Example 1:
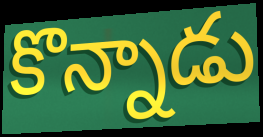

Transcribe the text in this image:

కొన్నాడు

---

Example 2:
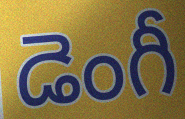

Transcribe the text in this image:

డెంగీ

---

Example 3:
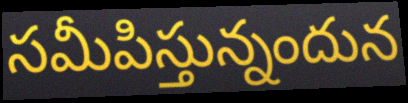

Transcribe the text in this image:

సమీపిస్తున్నందున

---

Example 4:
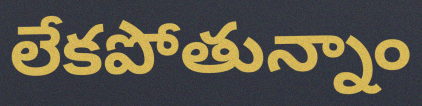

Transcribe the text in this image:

లేకపోతున్నాం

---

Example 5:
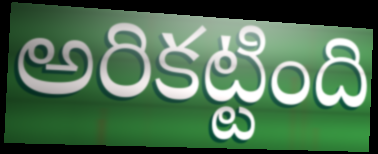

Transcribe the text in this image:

అరికట్టింది